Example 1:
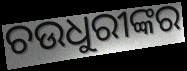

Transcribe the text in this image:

ଚଉଧୁରୀଙ୍କର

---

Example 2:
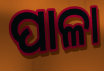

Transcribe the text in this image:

ପାଳା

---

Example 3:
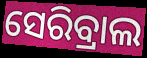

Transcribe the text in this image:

ସେରିବ୍ରାଲ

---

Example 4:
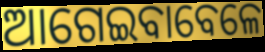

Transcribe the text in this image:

ଆଗେଇବାବେଳେ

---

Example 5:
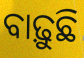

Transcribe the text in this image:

ବାଢ଼ୁଛି